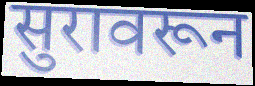
सुरावरून